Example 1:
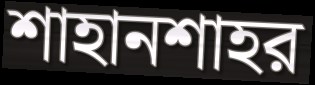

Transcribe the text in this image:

শাহানশাহর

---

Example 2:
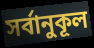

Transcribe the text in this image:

সর্বানুকূল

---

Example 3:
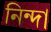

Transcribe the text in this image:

নিন্দা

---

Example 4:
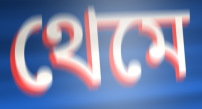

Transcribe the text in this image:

থেমে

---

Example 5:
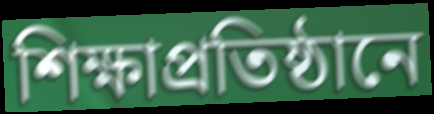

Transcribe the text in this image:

শিক্ষাপ্রতিষ্ঠানে